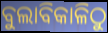
ବୁଲାବିକାଳିଠୁ